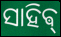
ସାହିଵ୍